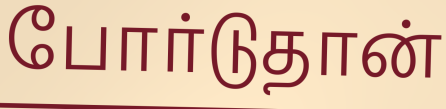
போர்டுதான்